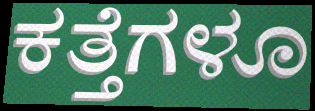
ಕತ್ತೆಗಳೂ